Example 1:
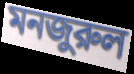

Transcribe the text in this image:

মনজুরুল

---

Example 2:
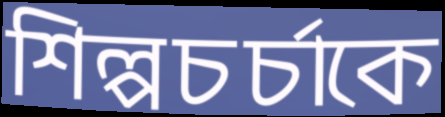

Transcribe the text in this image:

শিল্পচর্চাকে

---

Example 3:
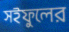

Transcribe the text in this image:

সইফুলের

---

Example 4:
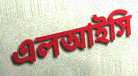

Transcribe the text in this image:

এলআইসি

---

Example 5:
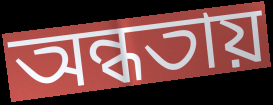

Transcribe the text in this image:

অন্ধতায়